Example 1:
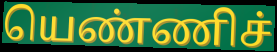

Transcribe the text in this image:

யெண்ணிச்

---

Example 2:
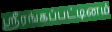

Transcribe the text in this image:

ஸ்ரீரங்கப்பட்டினம்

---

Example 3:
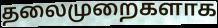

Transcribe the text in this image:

தலைமுறைகளாக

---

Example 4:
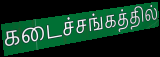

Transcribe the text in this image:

கடைச்சங்கத்தில்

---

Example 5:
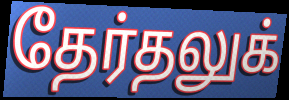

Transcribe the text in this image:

தேர்தலுக்